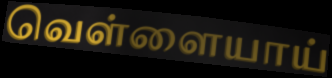
வெள்ளையாய்